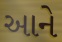
આને